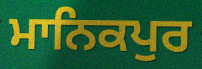
ਮਾਨਿਕਪੁਰ